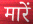
मारें